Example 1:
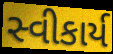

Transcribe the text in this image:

સ્વીકાર્ય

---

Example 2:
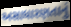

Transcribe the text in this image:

અસાધારણતાનું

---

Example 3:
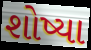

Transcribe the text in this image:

શોષ્યા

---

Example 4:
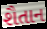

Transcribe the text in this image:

શૈતાન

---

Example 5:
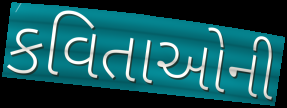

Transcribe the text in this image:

કવિતાઓની